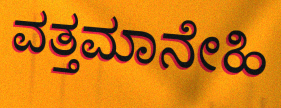
ವತ್ತಮಾನೇಹಿ